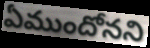
ఏముందోనని